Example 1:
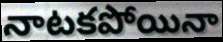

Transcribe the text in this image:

నాటకపోయినా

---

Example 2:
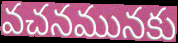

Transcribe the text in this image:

వచనమునకు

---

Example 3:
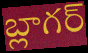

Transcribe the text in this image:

బ్లాగర్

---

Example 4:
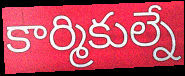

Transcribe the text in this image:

కార్మికుల్నే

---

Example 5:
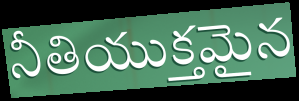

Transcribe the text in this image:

నీతియుక్తమైన